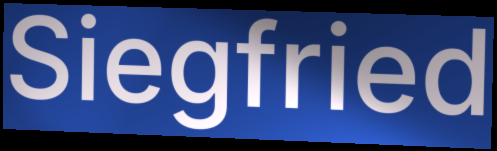
Siegfried